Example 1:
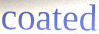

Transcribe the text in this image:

coated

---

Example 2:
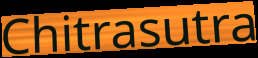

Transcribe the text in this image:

Chitrasutra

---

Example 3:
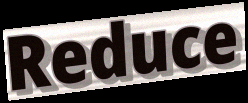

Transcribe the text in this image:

Reduce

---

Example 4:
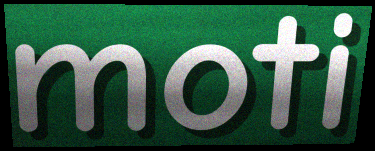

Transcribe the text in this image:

moti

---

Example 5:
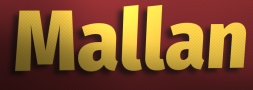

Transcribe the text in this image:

Mallan